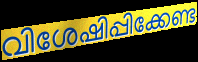
വിശേഷിപ്പിക്കേണ്ട